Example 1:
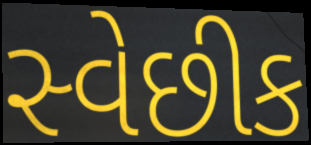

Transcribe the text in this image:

સ્વેછીક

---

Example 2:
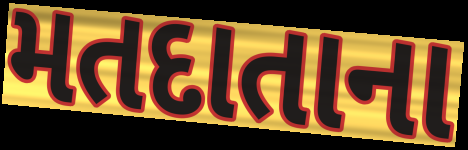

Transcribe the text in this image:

મતદાતાના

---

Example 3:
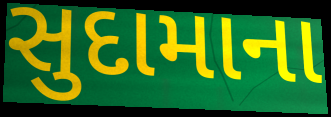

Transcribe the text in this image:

સુદામાના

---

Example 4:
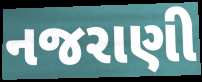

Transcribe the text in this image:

નજરાણી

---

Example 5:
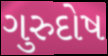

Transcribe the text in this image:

ગુરુદોષ